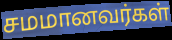
சமமானவர்கள்